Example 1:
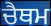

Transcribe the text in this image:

ਚੈਥਮ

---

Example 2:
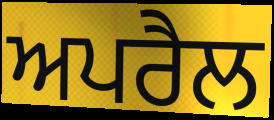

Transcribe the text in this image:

ਅਪਰੈਲ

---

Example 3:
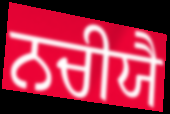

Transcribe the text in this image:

ਨਚੀਯੈ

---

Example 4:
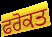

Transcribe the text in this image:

ਫਰੋਕਤ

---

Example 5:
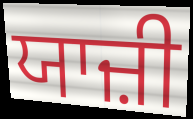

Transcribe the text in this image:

ਯਾਜ਼ੀ